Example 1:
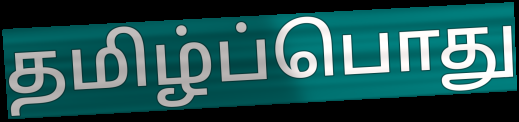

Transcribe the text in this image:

தமிழ்ப்பொது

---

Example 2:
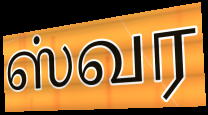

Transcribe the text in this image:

ஸ்வர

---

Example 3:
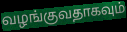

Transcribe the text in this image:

வழங்குவதாகவும்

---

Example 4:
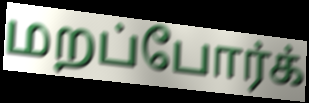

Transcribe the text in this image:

மறப்போர்க்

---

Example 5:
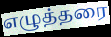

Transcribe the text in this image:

எழுத்தரை